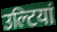
उल्‍टियां